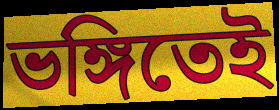
ভঙ্গিতেই